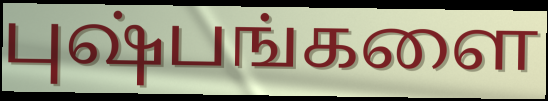
புஷ்பங்களை